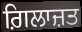
ਗ਼ਿਲਾਜ਼ਤ